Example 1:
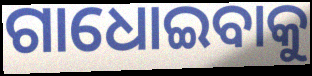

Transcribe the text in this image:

ଗାଧୋଇବାକୁ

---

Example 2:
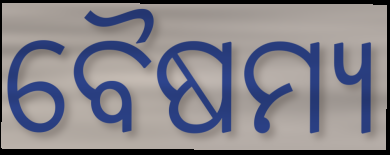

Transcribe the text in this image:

ବୈଷମ୍ୟ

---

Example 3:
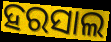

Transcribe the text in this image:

ହରସାଲ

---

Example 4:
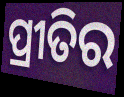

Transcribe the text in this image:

ପ୍ରୀତିର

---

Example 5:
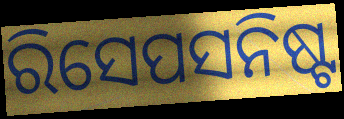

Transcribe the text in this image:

ରିସେପସନିଷ୍ଟ